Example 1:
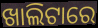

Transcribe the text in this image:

ଖାଲିଟାରେ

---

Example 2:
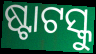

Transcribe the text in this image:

ଷ୍ଟାଟସ୍କୁ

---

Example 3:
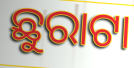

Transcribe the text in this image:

ଛୁରାଟା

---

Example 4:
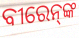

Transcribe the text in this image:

ବୀରେନ୍‍ଙ୍କ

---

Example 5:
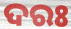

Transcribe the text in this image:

ଦରଃ